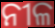
ନୀଳ